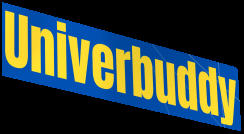
Univerbuddy